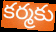
కర్మకు